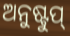
ଅନୁଷ୍ଟୁପ୍